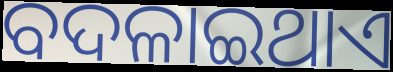
ବଦଳାଇଥାଏ